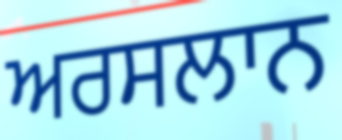
ਅਰਸਲਾਨ